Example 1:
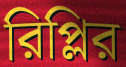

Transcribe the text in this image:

রিপ্লির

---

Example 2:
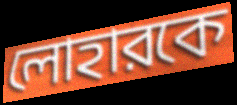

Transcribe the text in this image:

লোহারকে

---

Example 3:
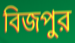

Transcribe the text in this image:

বিজপুর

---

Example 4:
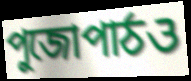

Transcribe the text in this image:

পুজোপাঠও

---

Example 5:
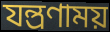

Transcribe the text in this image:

যন্ত্রণাময়